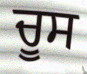
ਚੂਸ